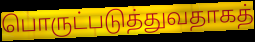
பொருட்படுத்துவதாகத்